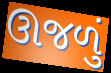
ઊજળું